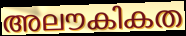
അലൗകികത